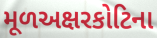
મૂળઅક્ષરકોટિના